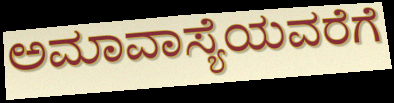
ಅಮಾವಾಸ್ಯೆಯವರೆಗೆ